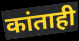
कांताही